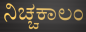
ನಿಚ್ಚಕಾಲಂ